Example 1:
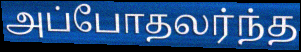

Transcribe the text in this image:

அப்போதலர்ந்த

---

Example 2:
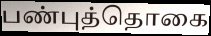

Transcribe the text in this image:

பண்புத்தொகை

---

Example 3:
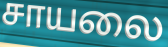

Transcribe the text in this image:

சாயலை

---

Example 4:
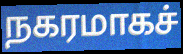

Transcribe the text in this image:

நகரமாகச்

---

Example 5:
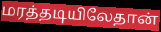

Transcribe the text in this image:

மரத்தடியிலேதான்